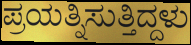
ಪ್ರಯತ್ನಿಸುತ್ತಿದ್ದಳು